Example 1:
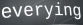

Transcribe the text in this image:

everying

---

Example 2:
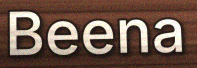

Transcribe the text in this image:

Beena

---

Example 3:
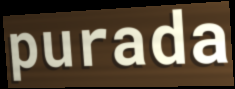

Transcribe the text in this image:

purada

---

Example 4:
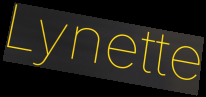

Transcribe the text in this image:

Lynette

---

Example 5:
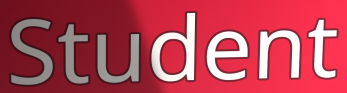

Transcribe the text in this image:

Student